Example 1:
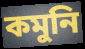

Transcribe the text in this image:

কমুনি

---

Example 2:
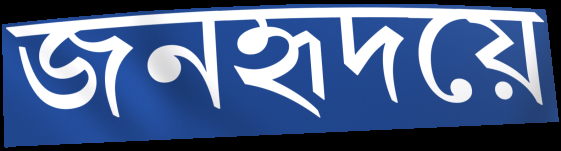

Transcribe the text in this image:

জনহৃদয়ে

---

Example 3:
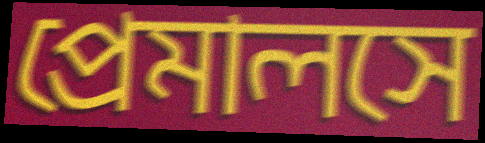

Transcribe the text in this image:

প্রেমালসে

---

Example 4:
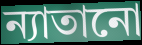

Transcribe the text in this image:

ন্যাতানো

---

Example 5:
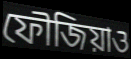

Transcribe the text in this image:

ফৌজিয়াও